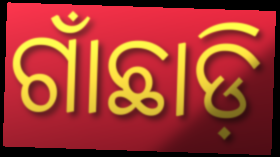
ଗାଁଛାଡ଼ି